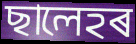
ছালেহৰ